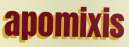
apomixis